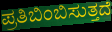
ಪ್ರತಿಬಿಂಬಿಸುತ್ತದೆ